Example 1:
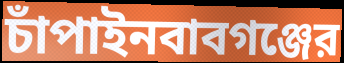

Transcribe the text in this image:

চাঁপাইনবাবগঞ্জের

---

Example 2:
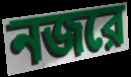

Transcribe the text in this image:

নজরে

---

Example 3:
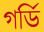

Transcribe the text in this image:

গর্ডি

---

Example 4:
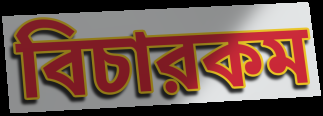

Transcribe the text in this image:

বিচারকম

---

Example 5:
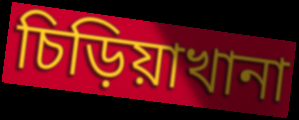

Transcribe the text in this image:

চিড়িয়াখানা